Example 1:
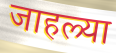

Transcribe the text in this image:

जाहल्या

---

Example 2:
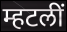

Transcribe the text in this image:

म्हटलीं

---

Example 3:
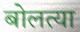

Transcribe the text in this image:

बोलत्या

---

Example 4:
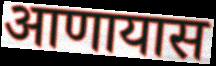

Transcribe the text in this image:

आणायास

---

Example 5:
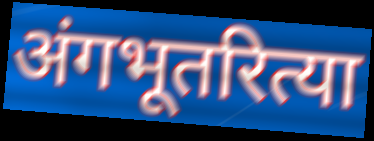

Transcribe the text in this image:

अंगभूतरित्या